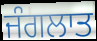
ਜੰਗਲਾਤ